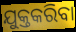
ଯୁକ୍ତକରିବା